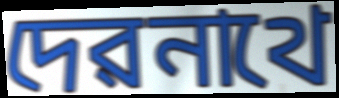
দেৱনাথে